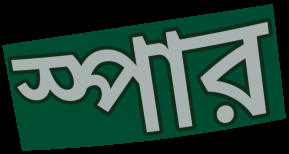
স্পার